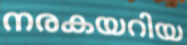
നരകയറിയ